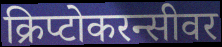
क्रिप्टोकरन्सीवर